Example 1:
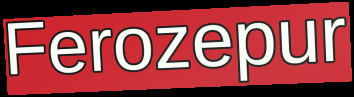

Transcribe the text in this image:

Ferozepur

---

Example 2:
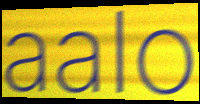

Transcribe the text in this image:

aalo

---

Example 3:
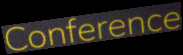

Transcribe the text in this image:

Conference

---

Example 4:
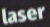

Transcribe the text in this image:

laser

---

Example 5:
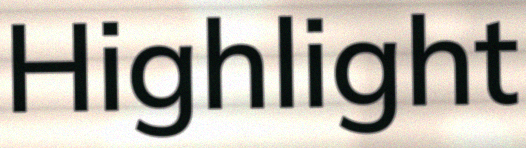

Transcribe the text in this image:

Highlight